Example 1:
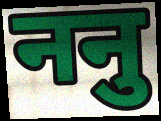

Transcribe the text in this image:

ननु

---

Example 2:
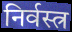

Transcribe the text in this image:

निर्वस्‍त्र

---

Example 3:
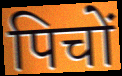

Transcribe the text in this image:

पिचों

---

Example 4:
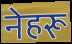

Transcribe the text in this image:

नेहरू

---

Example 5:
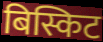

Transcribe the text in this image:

बिस्किट